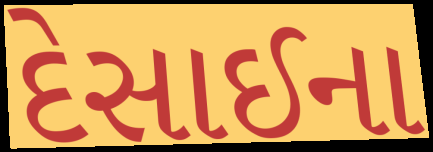
દેસાઈના